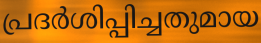
പ്രദർശിപ്പിച്ചതുമായ